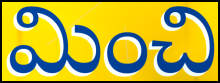
మించి